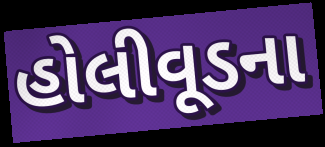
હોલીવૂડના